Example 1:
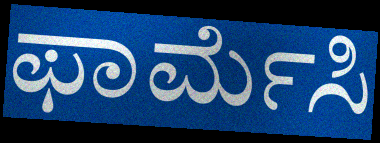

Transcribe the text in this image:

ಫಾರ್ಮೆಸಿ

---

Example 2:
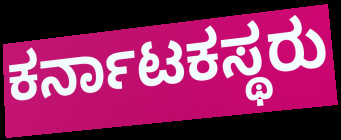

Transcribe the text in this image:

ಕರ್ನಾಟಕಸ್ಥರು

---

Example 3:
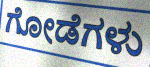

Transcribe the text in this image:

ಗೋಡೆಗಳು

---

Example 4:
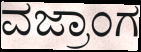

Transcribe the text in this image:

ವಜ್ರಾಂಗ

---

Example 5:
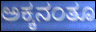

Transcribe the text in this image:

ಅಕ್ಕನಂತೂ